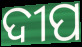
ଦୀପ